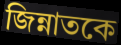
জিন্নাতকে